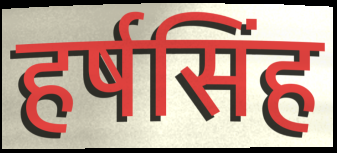
हर्षसिंह